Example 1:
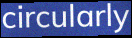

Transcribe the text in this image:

circularly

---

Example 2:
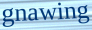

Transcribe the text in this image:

gnawing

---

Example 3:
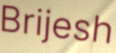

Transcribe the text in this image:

Brijesh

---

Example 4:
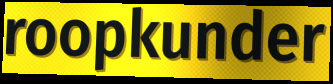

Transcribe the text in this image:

roopkunder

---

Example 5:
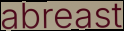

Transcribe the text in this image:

abreast